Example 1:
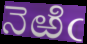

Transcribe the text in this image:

నెఱిఁ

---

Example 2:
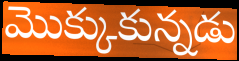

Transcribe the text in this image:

మొక్కుకున్నడు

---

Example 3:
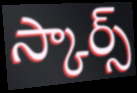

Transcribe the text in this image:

స్కార్స్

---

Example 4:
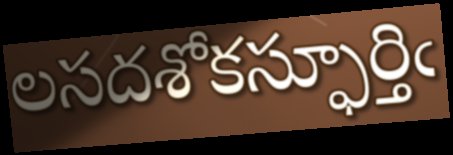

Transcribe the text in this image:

లసదశోకస్ఫూర్తిఁ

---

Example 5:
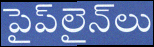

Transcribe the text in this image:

పైప్‌లైన్‌లు